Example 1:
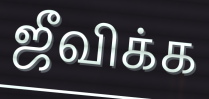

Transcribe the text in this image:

ஜீவிக்க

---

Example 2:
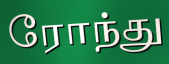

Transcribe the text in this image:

ரோந்து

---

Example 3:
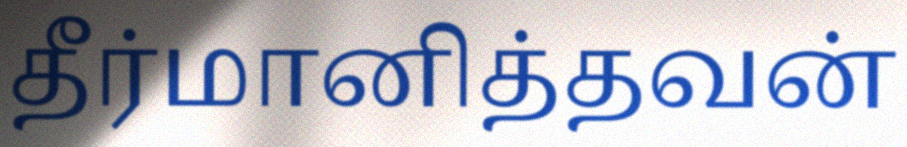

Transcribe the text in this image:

தீர்மானித்தவன்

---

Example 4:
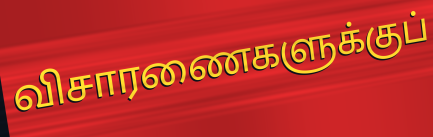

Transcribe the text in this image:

விசாரணைகளுக்குப்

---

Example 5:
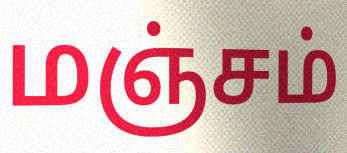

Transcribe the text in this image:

மஞ்சம்